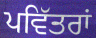
ਪਵਿੱਤਰਾਂ